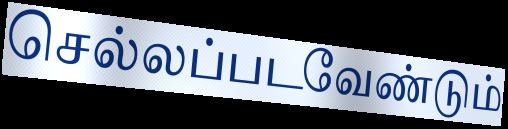
செல்லப்படவேண்டும்